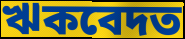
ঋকবেদত